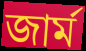
জার্ম